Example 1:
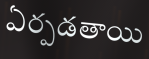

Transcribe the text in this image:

ఏర్పడతాయి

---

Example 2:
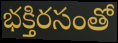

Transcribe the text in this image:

భక్తిరసంతో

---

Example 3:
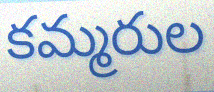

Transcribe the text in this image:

కమ్మరుల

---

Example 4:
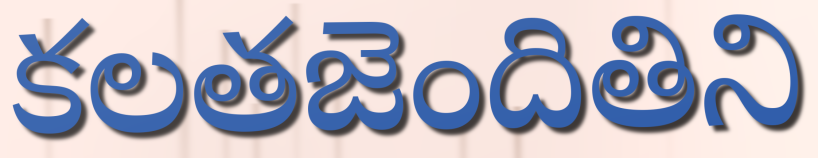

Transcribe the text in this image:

కలతజెందితిని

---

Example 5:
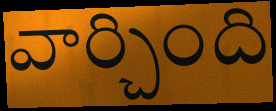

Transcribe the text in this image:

వార్చింది